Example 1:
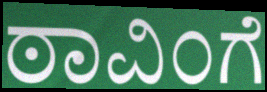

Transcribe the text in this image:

ಠಾವಿಂಗೆ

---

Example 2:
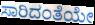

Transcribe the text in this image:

ಸಾರಿದಂತೆಯೇ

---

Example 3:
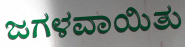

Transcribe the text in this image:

ಜಗಳವಾಯಿತು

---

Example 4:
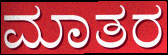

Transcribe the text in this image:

ಮಾತರ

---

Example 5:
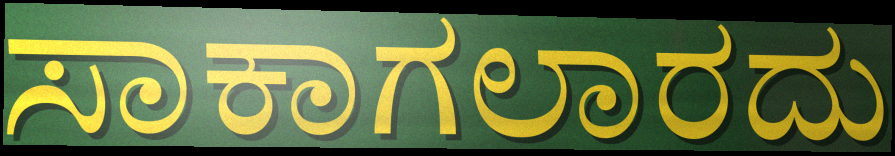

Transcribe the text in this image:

ಸಾಕಾಗಲಾರದು